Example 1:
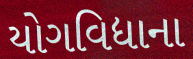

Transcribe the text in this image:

યોગવિદ્યાના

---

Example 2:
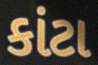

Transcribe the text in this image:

કાંટા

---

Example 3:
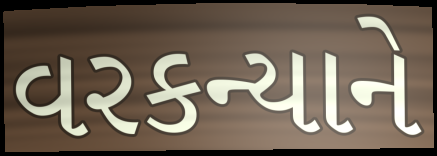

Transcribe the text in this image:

વરકન્યાને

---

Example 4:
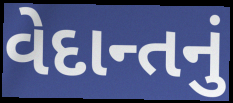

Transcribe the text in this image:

વેદાન્તનું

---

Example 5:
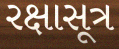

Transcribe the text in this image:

રક્ષાસૂત્ર